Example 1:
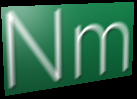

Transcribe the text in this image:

Nm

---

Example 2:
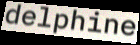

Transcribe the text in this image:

delphine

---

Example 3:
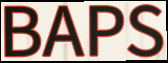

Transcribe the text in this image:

BAPS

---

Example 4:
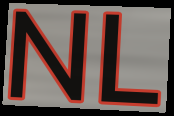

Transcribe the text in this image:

NL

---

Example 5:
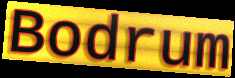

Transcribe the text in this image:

Bodrum